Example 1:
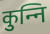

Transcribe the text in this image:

कुन्नि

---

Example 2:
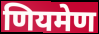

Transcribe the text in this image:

णियमेण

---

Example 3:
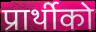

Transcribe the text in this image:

प्रार्थीको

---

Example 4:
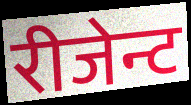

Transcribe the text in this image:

रीजेन्ट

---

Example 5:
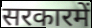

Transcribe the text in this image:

सरकारमें